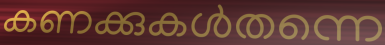
കണക്കുകൾതന്നെ